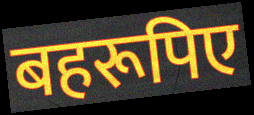
बहरूपिए